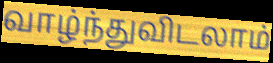
வாழ்ந்துவிடலாம்